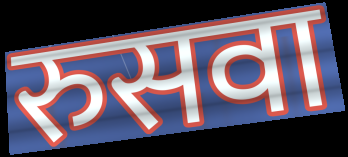
रुसवा